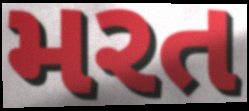
મરત